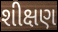
શીક્ષણ